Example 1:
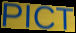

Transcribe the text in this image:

PICT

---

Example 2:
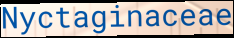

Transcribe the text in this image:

Nyctaginaceae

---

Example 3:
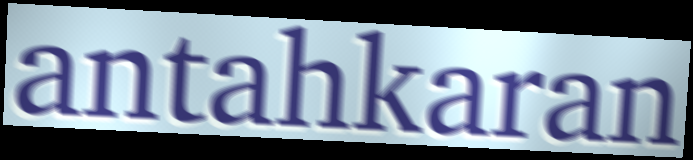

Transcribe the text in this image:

antahkaran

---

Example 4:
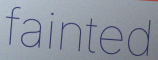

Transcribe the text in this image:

fainted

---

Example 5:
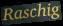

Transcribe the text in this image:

Raschig